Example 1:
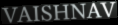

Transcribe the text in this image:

VAISHNAV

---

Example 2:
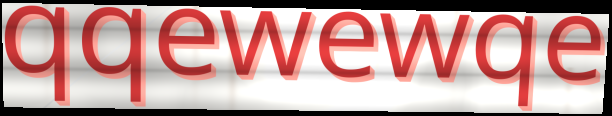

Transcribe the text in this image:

qqewewqe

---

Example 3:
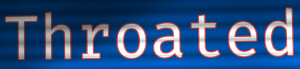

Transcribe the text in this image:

Throated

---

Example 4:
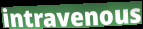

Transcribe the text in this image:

intravenous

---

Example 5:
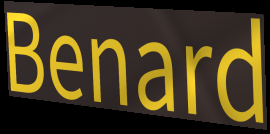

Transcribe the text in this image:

Benard